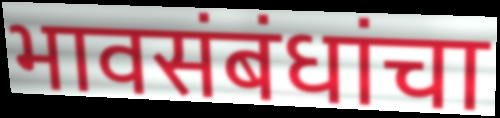
भावसंबंधांचा